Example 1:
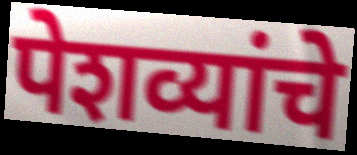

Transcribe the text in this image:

पेशव्यांचे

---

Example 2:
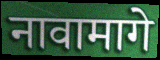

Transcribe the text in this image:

नावामागे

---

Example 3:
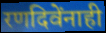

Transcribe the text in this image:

रणदिवेंनाही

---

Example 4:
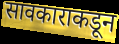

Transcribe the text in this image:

सावकाराकडून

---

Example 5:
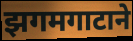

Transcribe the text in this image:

झगमगाटाने